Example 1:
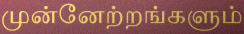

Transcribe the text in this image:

முன்னேற்றங்களும்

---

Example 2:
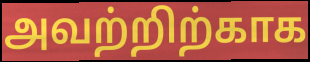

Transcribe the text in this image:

அவற்றிற்காக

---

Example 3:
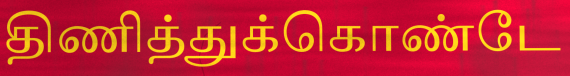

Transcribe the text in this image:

திணித்துக்கொண்டே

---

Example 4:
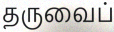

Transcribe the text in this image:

தருவைப்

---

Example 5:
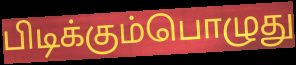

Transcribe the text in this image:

பிடிக்கும்பொழுது